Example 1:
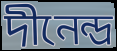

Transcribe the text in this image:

দীনেন্দ্র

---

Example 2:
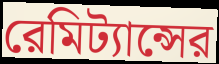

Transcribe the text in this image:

রেমিট্যান্সের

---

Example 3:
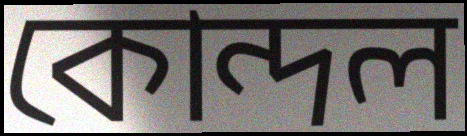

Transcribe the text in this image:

কোন্দল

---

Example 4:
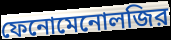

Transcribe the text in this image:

ফেনোমেনোলজির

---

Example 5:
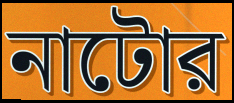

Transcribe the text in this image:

নাটোর